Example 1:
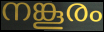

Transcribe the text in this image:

നങ്കൂരം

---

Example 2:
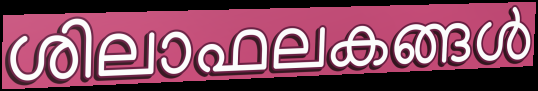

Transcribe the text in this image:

ശിലാഫലകങ്ങൾ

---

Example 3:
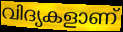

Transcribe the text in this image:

വിദ്യകളാണ്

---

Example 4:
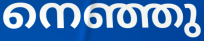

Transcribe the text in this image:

നെഞ്ഞു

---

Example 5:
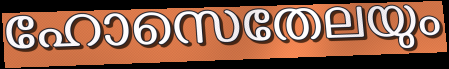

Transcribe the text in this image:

ഹോസെതേലയും